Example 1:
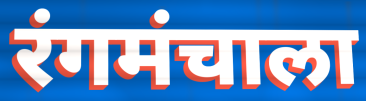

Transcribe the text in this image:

रंगमंचाला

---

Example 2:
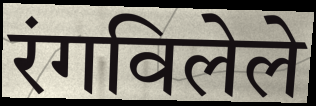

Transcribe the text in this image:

रंगविलेले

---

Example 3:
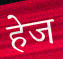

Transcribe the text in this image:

हेज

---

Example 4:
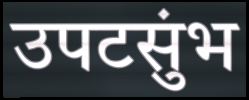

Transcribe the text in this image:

उपटसुंभ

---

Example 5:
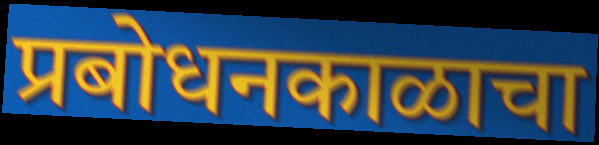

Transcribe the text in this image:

प्रबोधनकाळाचा